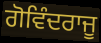
ਗੋਵਿੰਦਰਾਜੂ